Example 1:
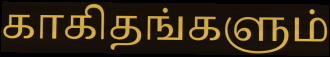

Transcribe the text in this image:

காகிதங்களும்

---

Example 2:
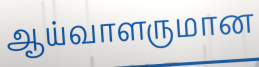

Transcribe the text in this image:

ஆய்வாளருமான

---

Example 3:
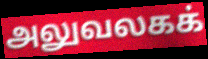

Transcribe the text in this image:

அலுவலகக்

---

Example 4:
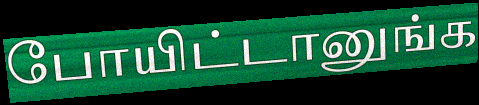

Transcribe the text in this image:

போயிட்டானுங்க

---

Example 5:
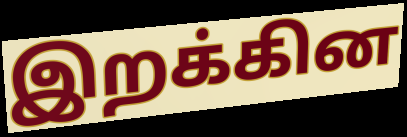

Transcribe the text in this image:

இறக்கின